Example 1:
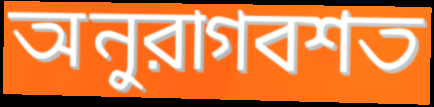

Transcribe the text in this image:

অনুরাগবশত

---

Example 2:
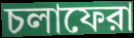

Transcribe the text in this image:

চলাফেরা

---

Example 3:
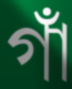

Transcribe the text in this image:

গাঁ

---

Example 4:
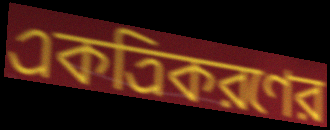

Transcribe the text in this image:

একত্রিকরণের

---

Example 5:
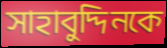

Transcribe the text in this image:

সাহাবুদ্দিনকে